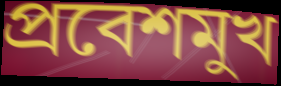
প্রবেশমুখ